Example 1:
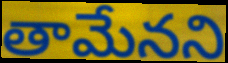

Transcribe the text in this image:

తామేనని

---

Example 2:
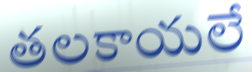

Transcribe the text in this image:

తలకాయలే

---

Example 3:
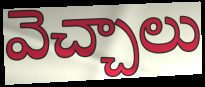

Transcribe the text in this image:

వెచ్చాలు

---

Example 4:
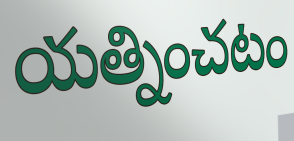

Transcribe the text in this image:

యత్నించటం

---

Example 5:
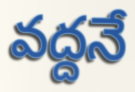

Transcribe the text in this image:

వద్దనే